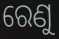
ରେଣୁ